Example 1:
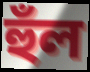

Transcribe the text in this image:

হুঁল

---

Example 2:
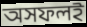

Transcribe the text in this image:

অসফলই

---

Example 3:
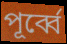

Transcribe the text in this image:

পূর্ব্বে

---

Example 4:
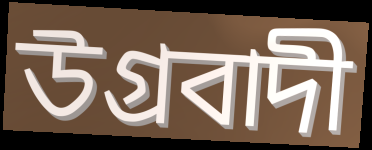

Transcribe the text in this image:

উগ্রবাদী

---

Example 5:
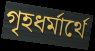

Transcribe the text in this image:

গৃহধর্মার্থে